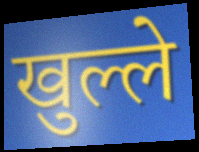
खुल्ले